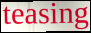
teasing